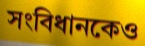
সংবিধানকেও